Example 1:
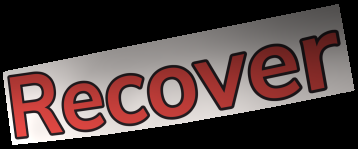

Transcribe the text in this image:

Recover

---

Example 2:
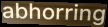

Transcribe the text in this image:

abhorring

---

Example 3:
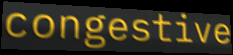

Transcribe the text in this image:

congestive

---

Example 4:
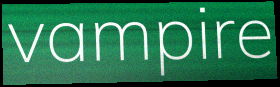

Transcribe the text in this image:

vampire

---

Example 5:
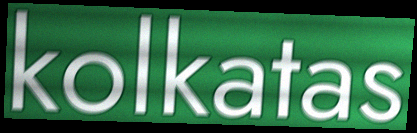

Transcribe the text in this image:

kolkatas